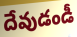
దేవుడండీ